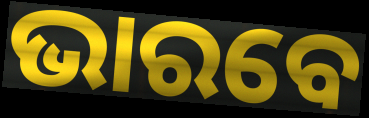
ଭାରବେ